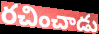
రచించాడు